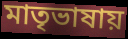
মাতৃভাষায়